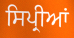
ਸਿਪ੍ਰੀਆਂ